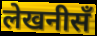
लेखनीसँ